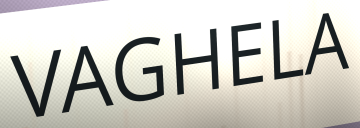
VAGHELA